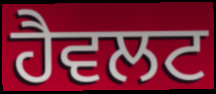
ਹੈਵਲਟ